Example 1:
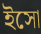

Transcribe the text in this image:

ইসো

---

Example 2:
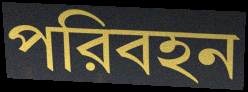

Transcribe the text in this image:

পরিবহন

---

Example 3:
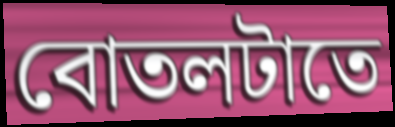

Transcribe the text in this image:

বোতলটাতে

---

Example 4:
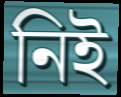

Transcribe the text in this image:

নিই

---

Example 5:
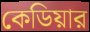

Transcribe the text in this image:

কেডিয়ার